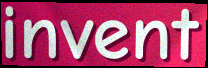
invent